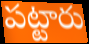
పట్టారు